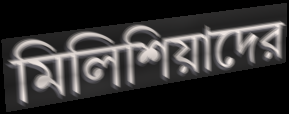
মিলিশিয়াদের